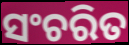
ସଂଚରିତ